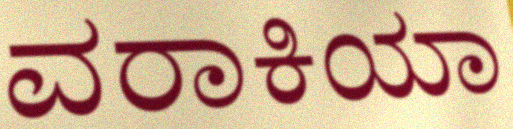
ವರಾಕಿಯಾ